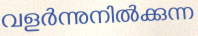
വളർന്നുനിൽക്കുന്ന